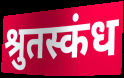
श्रुतस्कंध